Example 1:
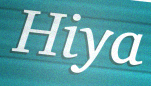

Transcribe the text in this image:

Hiya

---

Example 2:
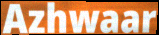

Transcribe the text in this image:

Azhwaar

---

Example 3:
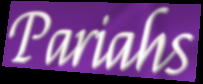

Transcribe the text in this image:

Pariahs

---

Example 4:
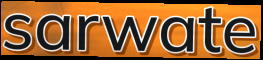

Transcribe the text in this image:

sarwate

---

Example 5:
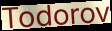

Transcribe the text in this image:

Todorov